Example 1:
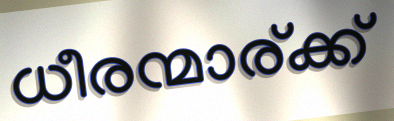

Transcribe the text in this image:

ധീരന്മാര്ക്ക്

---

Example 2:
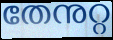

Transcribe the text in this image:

തേനുറ്റ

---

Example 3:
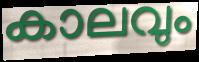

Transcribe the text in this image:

കാലവും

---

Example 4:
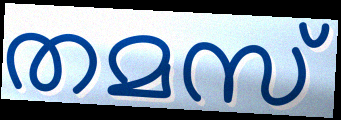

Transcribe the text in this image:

തമസ്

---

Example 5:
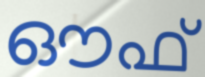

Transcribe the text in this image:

ഔഫ്